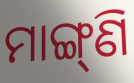
ମାଙ୍ଗ୍‌ଣି